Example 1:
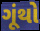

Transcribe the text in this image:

ગૂંથો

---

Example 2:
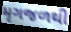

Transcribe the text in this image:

મૃગજળથી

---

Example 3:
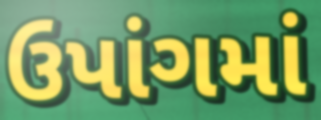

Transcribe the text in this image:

ઉપાંગમાં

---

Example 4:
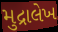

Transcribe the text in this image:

મુદ્રાલેખ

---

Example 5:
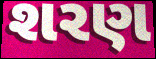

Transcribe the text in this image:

શરણ